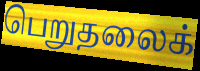
பெறுதலைக்